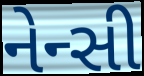
નેન્સી